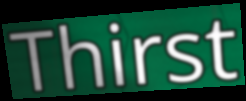
Thirst